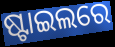
ଷ୍ଟାଇଲରେ